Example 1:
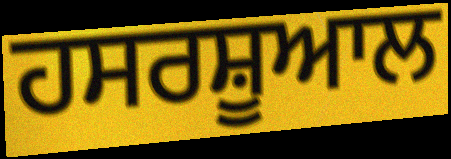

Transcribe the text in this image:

ਹਸਰਸ਼ੂਆਲ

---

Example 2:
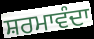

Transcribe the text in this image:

ਸ਼ਰਮਾਵੰਦਾ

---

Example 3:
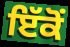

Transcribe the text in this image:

ਇੱਕੋਂ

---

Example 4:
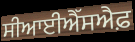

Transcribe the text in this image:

ਸੀਆਈਐੱਸਐਫ਼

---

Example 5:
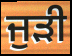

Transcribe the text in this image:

ਜੁੜੀ